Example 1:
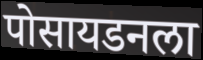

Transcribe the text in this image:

पोसायडनला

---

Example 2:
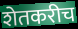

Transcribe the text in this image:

शेतकरीच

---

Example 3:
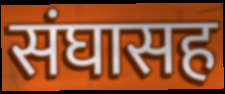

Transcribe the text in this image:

संघासह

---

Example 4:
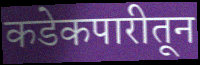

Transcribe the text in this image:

कडेकपारीतून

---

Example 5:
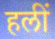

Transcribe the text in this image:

हलीं